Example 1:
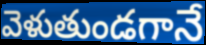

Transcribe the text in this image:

వెళుతుండగానే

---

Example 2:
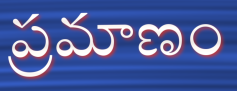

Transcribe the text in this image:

ప్రమాణం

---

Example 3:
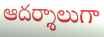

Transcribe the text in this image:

ఆదర్శాలుగా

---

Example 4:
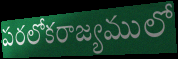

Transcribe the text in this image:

పరలోకరాజ్యములో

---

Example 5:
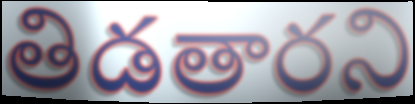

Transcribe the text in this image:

తిడతారని